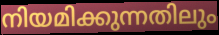
നിയമിക്കുന്നതിലും